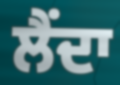
ਲੈਂਦਾ